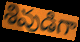
శివుడిగా